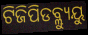
ଟିଜିପିଡବ୍ଲ୍ୟୁୟୁ